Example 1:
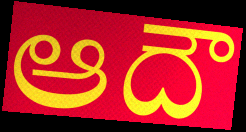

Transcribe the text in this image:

ఆదౌ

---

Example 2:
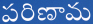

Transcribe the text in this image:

పరిణామ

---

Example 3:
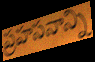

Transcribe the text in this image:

ప్రహసనాన్ని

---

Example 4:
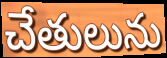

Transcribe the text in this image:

చేతులును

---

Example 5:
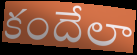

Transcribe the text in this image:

కందేలా